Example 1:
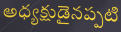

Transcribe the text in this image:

అధ్యక్షుడైనప్పటి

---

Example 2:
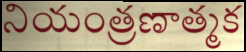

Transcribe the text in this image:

నియంత్రణాత్మక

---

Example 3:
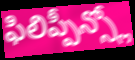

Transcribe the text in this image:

ఫిలిప్పీన్స్లో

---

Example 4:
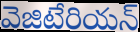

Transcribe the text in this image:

వెజిటేరియన్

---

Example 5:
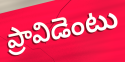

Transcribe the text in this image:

ప్రావిడెంటు